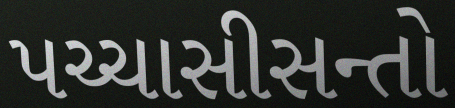
પચ્ચાસીસન્તો